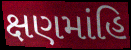
ક્ષણમાંહિ